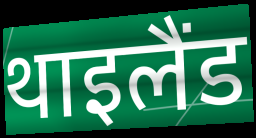
थाइलैंड